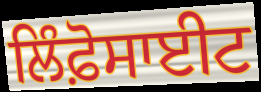
ਲਿੰਫ਼ੋਸਾਈਟ